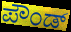
ಪೌಂಡ್